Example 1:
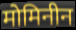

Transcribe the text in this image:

मोमिनीन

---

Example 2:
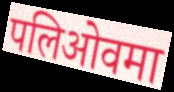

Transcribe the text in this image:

पलिओवमा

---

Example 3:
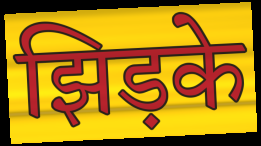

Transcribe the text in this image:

झिड़के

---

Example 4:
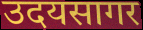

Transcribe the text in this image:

उदयसागर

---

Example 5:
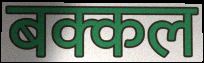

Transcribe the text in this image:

बक्कल